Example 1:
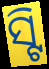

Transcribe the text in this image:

ସ୍ଟି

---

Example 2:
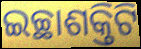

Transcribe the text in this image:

ଇଚ୍ଛାଶକ୍ତିଟି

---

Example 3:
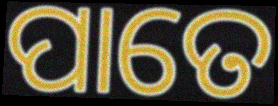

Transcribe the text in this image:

ପାତେ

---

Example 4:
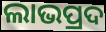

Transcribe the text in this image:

ଲାଭପ୍ରଦ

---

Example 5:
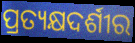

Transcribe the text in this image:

ପ୍ରତ୍ୟକ୍ଷଦର୍ଶୀର